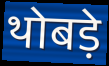
थोबड़े